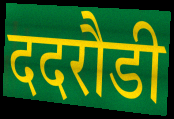
ददरौडी